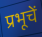
प्रभूचें